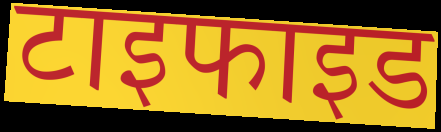
टाइफाइड